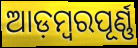
ଆଡ଼ମ୍ବରପୂର୍ଣ୍ଣ